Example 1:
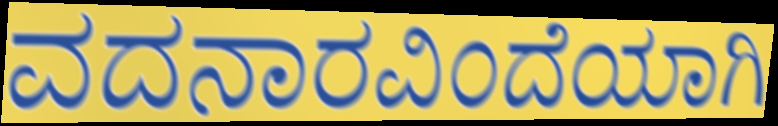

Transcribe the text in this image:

ವದನಾರವಿಂದೆಯಾಗಿ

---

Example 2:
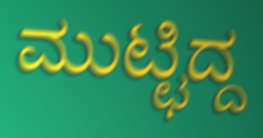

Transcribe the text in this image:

ಮುಟ್ಟಿದ್ದ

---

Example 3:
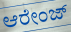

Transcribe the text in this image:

ಆರೇಂಜ್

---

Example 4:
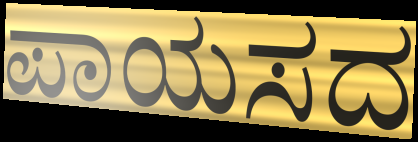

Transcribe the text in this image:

ಪಾಯಸದ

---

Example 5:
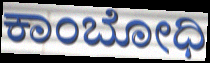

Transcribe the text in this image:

ಕಾಂಬೋಧಿ